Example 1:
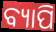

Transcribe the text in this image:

ବ୍ଯାପି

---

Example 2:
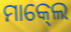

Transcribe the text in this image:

ମାକ୍‍ଲେ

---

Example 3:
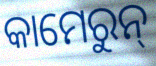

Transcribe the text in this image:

କାମେରୁନ୍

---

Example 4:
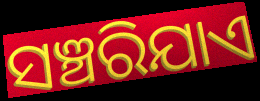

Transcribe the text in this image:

ସଞ୍ଚରିଯାଏ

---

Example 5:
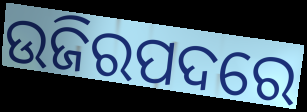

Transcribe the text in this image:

ଉଜିରପଦରେ